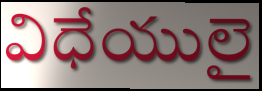
విధేయులై